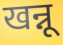
खन्नू